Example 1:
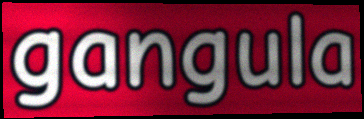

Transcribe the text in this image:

gangula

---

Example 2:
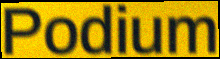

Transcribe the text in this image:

Podium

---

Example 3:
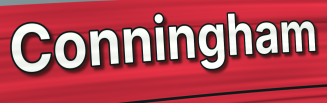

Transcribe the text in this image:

Conningham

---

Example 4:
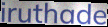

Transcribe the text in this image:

iruthade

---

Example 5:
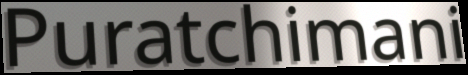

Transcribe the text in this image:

Puratchimani